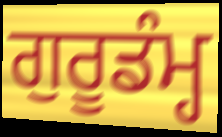
ਗੁਰੂਡੰਮ੍ਹ